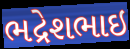
ભદ્રેશભાઇ